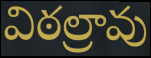
విఠల్రావు